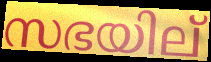
സഭയില്